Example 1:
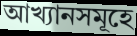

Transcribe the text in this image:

আখ্যানসমূহে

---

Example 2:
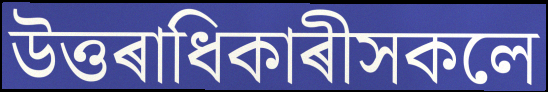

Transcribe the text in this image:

উত্তৰাধিকাৰীসকলে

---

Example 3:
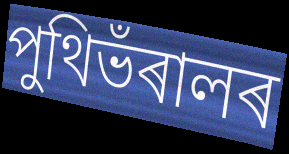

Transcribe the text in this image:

পুথিভঁৰালৰ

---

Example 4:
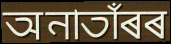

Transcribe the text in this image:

অনাতাঁৰৰ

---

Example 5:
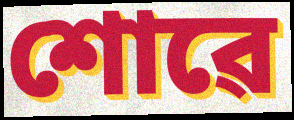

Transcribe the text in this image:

শোৱে